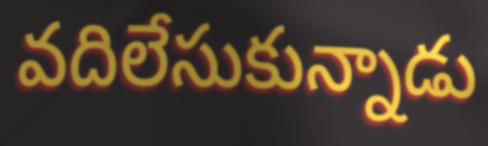
వదిలేసుకున్నాడు